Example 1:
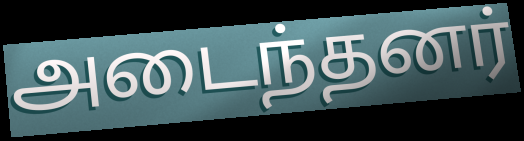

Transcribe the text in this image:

அடைந்தனர்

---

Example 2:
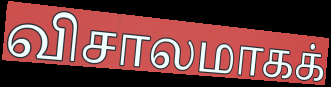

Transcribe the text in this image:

விசாலமாகக்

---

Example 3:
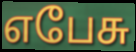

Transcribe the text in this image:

எபேசு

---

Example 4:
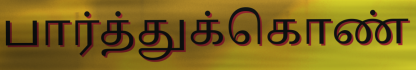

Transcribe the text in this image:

பார்த்துக்கொண்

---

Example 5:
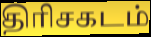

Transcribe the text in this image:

திரிசகடம்